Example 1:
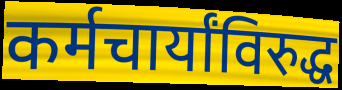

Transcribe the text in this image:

कर्मचार्यांविरुद्ध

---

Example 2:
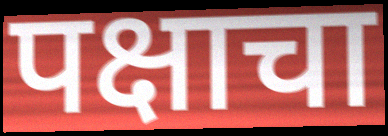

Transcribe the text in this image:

पक्षाचा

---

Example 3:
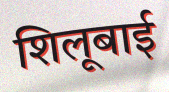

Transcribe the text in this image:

शिलूबाई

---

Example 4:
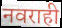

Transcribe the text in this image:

नवराही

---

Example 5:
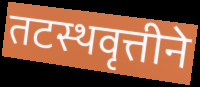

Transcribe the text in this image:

तटस्थवृत्तीने